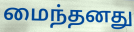
மைந்தனது